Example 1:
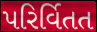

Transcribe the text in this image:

પરિર્વિતત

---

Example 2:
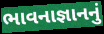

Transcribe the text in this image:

ભાવનાજ્ઞાનનું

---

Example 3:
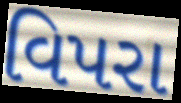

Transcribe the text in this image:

વિપરા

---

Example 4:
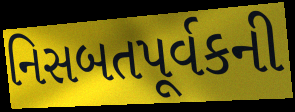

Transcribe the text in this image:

નિસબતપૂર્વકની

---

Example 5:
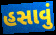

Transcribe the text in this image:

હસાવું